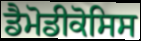
ਡੈਮੋਡੀਕੋਸਿਸ